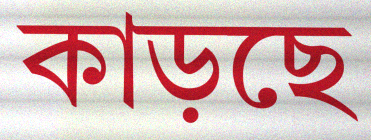
কাড়ছে